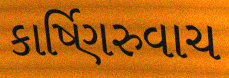
કાર્ષ્ણિરુવાચ